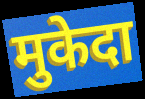
मुकेदा